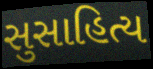
સુસાહિત્ય